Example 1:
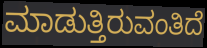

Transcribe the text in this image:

ಮಾಡುತ್ತಿರುವಂತಿದೆ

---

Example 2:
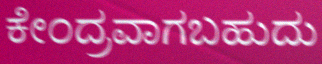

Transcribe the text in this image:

ಕೇಂದ್ರವಾಗಬಹುದು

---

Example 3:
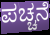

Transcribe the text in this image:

ಪಚ್ಚನೆ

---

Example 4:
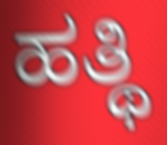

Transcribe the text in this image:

ಹತ್ಥಿ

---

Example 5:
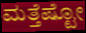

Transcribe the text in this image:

ಮತ್ತೆಷ್ಟೋ